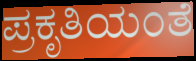
ಪ್ರಕೃತಿಯಂತೆ